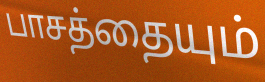
பாசத்தையும்